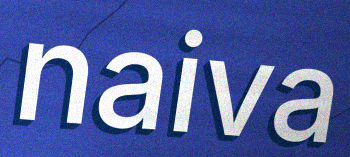
naiva